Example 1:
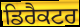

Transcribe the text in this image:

ਡਿਰੈਕਟਰ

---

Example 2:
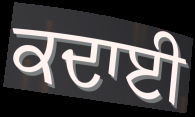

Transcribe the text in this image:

ਕਦਾਈ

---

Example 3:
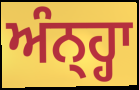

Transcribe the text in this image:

ਅੰਨ੍ਹ੍ਹਾ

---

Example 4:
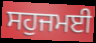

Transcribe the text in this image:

ਸਹੁਜਮਈ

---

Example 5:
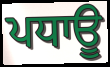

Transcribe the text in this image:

ਪਧਾਊ